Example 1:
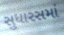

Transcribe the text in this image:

સુધારસમાં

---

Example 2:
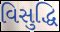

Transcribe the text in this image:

વિસુદ્ધિ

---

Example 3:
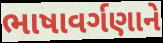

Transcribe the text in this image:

ભાષાવર્ગણાને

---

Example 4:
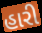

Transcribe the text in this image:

હારી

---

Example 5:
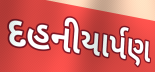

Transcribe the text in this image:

દહનીયાર્પણ